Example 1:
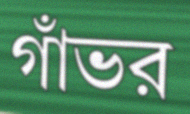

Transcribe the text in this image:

গাঁভর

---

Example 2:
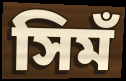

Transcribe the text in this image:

সিমঁ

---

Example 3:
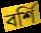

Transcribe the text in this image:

বর্শি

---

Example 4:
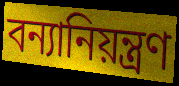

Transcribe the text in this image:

বন্যানিয়ন্ত্রণ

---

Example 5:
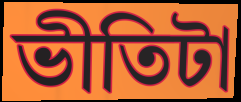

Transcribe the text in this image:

ভীতিটা